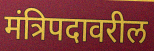
मंत्रिपदावरील